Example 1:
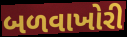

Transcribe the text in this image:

બળવાખોરી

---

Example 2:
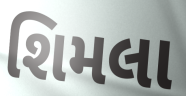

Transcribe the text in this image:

શિમલા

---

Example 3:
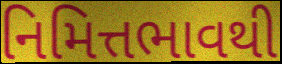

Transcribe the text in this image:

નિમિત્તભાવથી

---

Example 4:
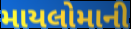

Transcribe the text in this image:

માયલોમાની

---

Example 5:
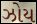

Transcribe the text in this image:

ઝોય